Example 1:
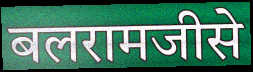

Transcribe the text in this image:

बलरामजीसे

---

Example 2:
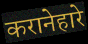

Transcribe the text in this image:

करानेहारे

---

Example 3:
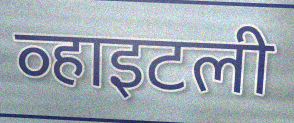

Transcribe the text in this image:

व्हाइटली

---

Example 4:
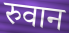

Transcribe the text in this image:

रुवान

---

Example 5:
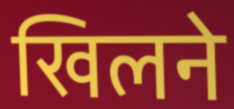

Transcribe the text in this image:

खिलने